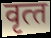
वृत्‍त